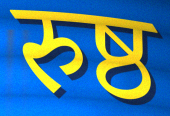
रुष्ठ